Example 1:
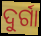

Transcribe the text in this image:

ଦୁର୍ଗା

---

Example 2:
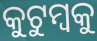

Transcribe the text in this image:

କୁଟୁମ୍ବକୁ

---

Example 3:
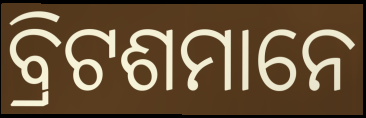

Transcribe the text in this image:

ବ୍ରିଟଶମାନେ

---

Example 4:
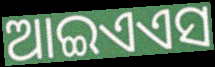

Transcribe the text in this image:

ଆଇଏଏସ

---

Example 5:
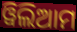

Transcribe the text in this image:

ୱିଲିଆମ